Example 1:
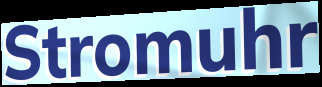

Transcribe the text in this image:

Stromuhr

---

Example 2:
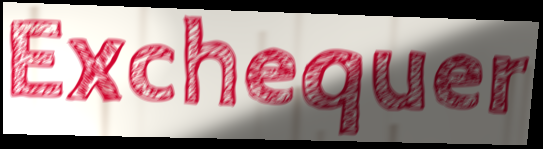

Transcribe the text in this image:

Exchequer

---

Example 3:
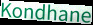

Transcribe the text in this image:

Kondhane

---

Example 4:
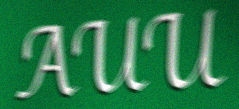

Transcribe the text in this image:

AUU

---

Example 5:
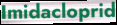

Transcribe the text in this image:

Imidacloprid